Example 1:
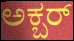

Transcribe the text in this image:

ಅಕ್ಬರ್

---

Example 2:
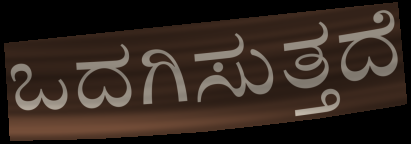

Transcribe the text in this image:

ಒದಗಿಸುತ್ತದೆ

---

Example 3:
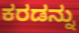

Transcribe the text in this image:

ಕರಡನ್ನು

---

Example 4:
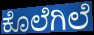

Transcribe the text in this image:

ಕೊಲೆಗಿಲೆ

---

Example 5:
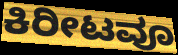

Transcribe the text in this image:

ಕಿರೀಟವೂ